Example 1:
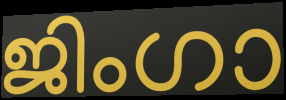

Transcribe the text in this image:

ജിംഗാ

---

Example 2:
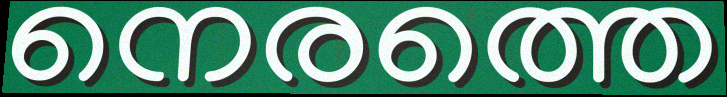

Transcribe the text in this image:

നെരത്തെ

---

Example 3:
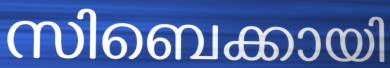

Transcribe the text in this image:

സിബെക്കായി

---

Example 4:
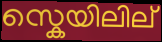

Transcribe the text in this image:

സ്കെയിലില്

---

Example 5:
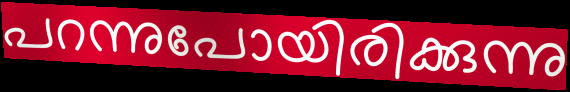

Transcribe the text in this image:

പറന്നുപോയിരിക്കുന്നു